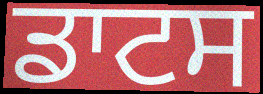
ਡਾਟਸ